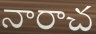
నారాచ